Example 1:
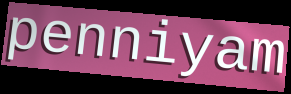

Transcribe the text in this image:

penniyam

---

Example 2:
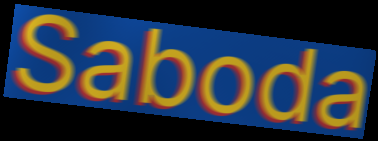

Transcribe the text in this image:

Saboda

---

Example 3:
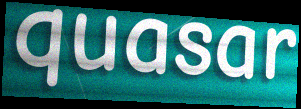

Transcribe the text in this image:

quasar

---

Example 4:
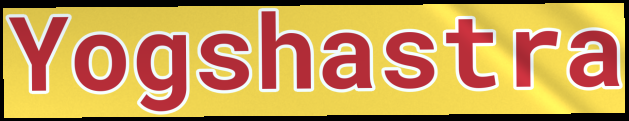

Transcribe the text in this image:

Yogshastra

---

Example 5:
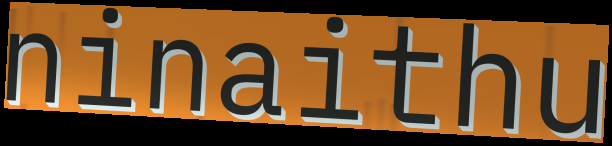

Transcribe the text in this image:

ninaithu